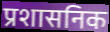
प्रशासनिक